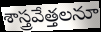
శాస్త్రవేత్తలనూ